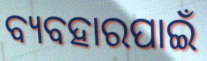
ବ୍ୟବହାରପାଇଁ